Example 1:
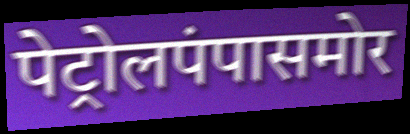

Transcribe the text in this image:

पेट्रोलपंपासमोर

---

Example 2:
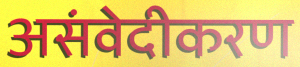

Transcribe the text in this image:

असंवेदीकरण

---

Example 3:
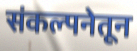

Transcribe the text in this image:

संकल्पनेतून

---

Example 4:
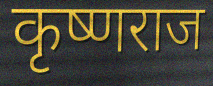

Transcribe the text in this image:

कृष्णराज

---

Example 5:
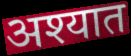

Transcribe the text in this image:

अश्यात